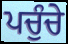
ਪਚੁੰਚੇ